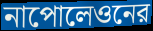
নাপোলেওনের